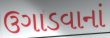
ઉગાડવાનાં